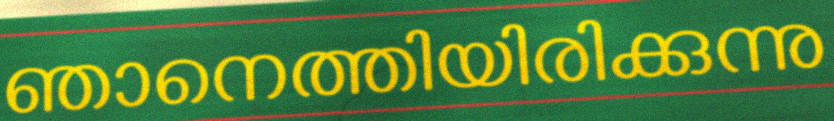
ഞാനെത്തിയിരിക്കുന്നു